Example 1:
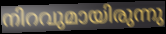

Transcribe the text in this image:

നിറവുമായിരുന്നു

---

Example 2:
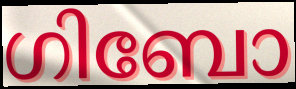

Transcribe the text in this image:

ഗിബോ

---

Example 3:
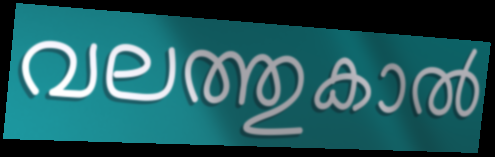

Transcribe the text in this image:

വലത്തുകാൽ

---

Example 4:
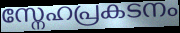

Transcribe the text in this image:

സ്നേഹപ്രകടനം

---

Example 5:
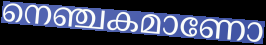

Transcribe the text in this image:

നെഞ്ചകമാണോ